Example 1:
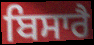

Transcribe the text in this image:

ਬਿਸਾਰੈ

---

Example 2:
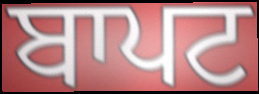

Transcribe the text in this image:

ਬਾਪਟ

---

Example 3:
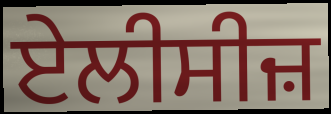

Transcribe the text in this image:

ਏਲੀਸੀਜ਼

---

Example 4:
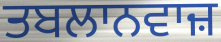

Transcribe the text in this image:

ਤਬਲਾਨਵਾਜ਼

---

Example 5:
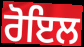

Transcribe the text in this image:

ਰੋਇਲ